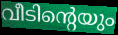
വീടിന്റെയും